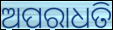
ଅପରାଧତି